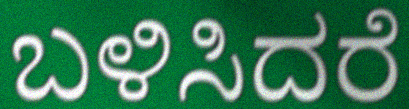
ಬಳಿಸಿದರೆ